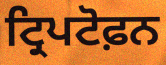
ਟ੍ਰਿਪਟੋਫ਼ਨ